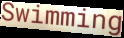
Swimming